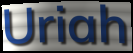
Uriah